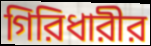
গিরিধারীর